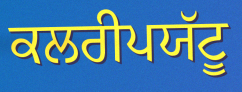
ਕਲਰੀਪਯੱਟੂ